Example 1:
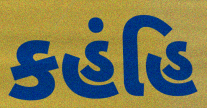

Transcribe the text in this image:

કહંહિ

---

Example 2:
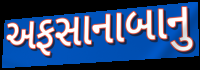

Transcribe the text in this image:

અફસાનાબાનુ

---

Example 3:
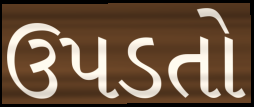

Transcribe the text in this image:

ઉપડતો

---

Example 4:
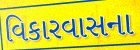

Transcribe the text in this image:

વિકારવાસના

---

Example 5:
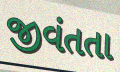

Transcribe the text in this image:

જીવંતતા